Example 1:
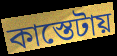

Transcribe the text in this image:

কাস্তেটায়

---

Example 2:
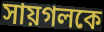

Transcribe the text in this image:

সায়গলকে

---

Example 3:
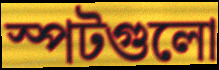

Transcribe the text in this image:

স্পটগুলো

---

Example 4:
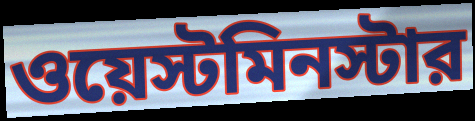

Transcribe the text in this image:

ওয়েস্টমিনস্টার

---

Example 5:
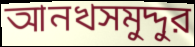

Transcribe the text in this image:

আনখসমুদ্দুর